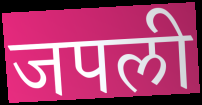
जपली